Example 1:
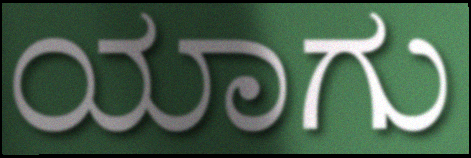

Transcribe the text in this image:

ಯಾಗು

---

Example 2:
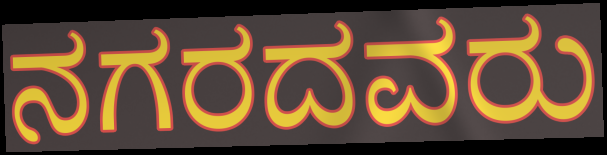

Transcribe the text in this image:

ನಗರದವರು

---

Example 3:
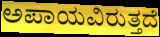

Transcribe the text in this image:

ಅಪಾಯವಿರುತ್ತದೆ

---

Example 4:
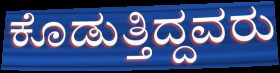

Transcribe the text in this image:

ಕೊಡುತ್ತಿದ್ದವರು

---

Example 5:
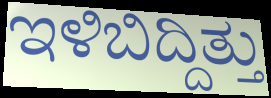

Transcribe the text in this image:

ಇಳಿಬಿದ್ದಿತ್ತು